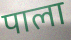
पाला